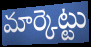
మార్కెట్టు